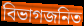
বিভাগজনিত